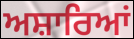
ਅਸ਼ਾਰਿਆਂ